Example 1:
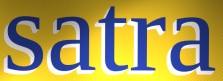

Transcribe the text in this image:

satra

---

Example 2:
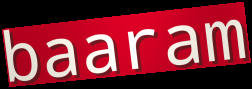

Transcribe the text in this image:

baaram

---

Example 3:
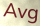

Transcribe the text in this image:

Avg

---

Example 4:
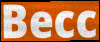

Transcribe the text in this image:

Becc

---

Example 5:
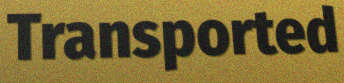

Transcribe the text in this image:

Transported